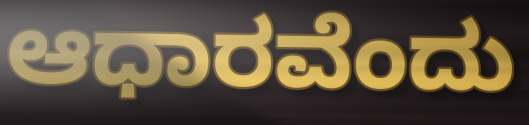
ಆಧಾರವೆಂದು